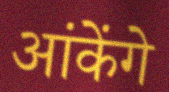
आंकेंगे